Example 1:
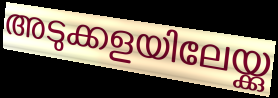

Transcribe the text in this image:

അടുക്കളയിലേയ്ക്കു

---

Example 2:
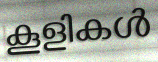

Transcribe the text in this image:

കൂളികൾ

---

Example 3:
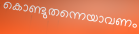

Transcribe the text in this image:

കൊണ്ടുതന്നെയാവണം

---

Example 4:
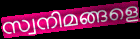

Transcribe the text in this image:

സ്വനിമങ്ങളെ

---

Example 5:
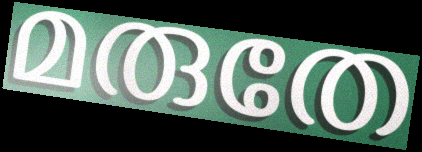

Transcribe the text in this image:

മരുതേ